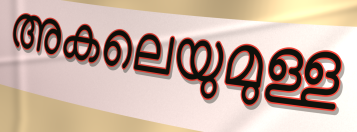
അകലെയുമുള്ള